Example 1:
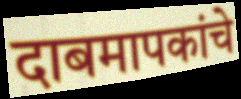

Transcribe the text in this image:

दाबमापकांचे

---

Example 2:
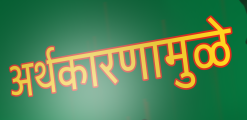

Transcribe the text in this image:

अर्थकारणामुळे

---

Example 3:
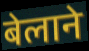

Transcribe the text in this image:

बेलाने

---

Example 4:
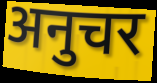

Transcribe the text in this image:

अनुचर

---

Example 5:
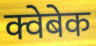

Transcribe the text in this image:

क्वेबेक